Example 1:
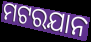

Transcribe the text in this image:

ମଟରଯାନ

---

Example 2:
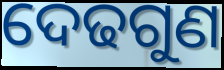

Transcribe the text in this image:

ଦେଢଗୁଣ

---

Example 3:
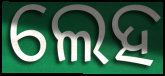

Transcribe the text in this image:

ଲେହ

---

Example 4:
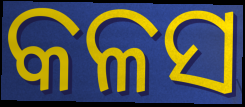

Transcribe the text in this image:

କଳସ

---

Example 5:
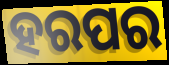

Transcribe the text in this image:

ହରପର